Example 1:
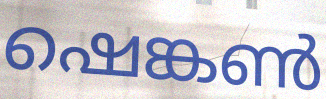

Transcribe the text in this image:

ഷെങ്കൺ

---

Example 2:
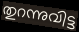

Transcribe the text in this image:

തുറന്നുവിട്ട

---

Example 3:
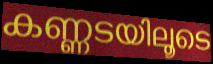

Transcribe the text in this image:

കണ്ണടയിലൂടെ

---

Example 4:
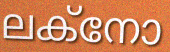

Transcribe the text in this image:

ലക്നോ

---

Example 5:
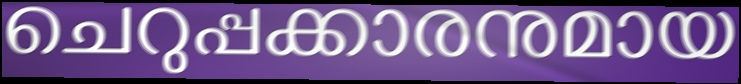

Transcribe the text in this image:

ചെറുപ്പക്കാരനുമായ